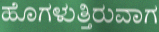
ಹೊಗಳುತ್ತಿರುವಾಗ